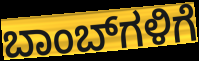
ಬಾಂಬ್‌ಗಳಿಗೆ